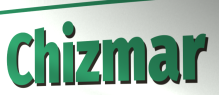
Chizmar